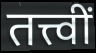
तत्त्वीं